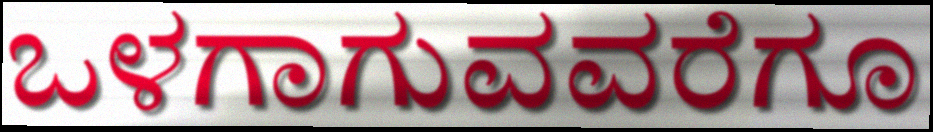
ಒಳಗಾಗುವವರೆಗೂ